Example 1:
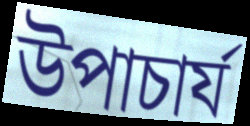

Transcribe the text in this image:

উপাচাৰ্য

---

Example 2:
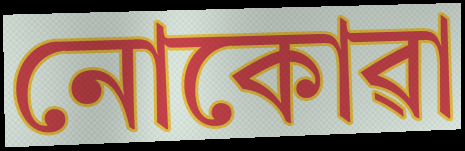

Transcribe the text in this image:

নোকোৱা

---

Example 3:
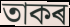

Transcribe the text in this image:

তাকৰ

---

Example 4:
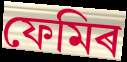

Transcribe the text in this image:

ফেমিৰ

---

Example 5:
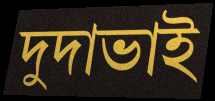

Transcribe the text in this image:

দুদাভাই